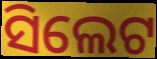
ସିଲେଟ